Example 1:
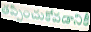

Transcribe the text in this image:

తప్పించుకోవడానికీ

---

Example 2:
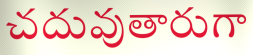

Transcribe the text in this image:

చదువుతారుగా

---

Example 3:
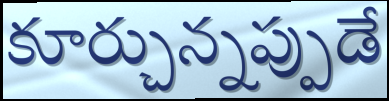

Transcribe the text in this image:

కూర్చున్నప్పుడే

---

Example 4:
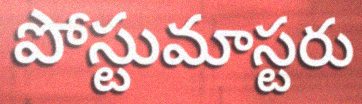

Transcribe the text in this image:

పోస్టుమాస్టరు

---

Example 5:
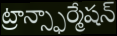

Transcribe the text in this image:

ట్రాన్స్ఫార్మేషన్